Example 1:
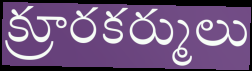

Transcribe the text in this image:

క్రూరకర్ములు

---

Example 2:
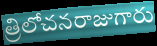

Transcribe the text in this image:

త్రిలోచనరాజుగారు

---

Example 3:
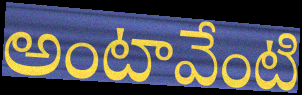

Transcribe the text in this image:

అంటావేంటి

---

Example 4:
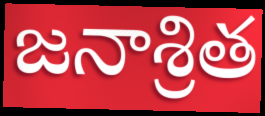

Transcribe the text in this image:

జనాశ్రిత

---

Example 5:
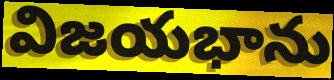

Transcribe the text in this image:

విజయభాను